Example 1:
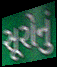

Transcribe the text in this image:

સૂરોનું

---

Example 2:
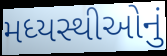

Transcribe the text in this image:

મધ્યસ્થીઓનું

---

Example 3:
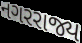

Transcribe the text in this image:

નગરરાજ્ય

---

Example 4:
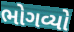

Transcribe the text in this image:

ભોગવ્યો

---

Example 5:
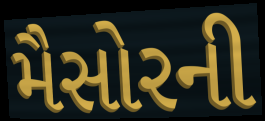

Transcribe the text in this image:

મૈસોરની